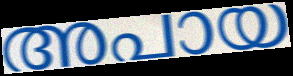
അപായ